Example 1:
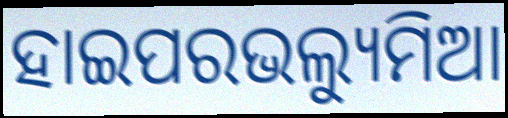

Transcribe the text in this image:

ହାଇପରଭଲ୍ୟୁମିଆ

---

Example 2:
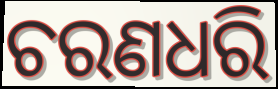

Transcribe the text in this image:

ଚରଣଧରି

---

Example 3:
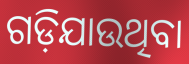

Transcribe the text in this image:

ଗଡ଼ିଯାଉଥିବା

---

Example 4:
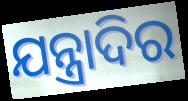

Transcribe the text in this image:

ଯନ୍ତ୍ରାଦିର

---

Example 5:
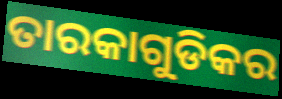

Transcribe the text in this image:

ତାରକାଗୁଡିକର